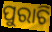
ପୁରାଚି